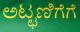
ಅಟ್ಟಣಿಗೆಗೆ